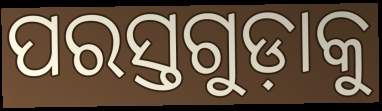
ପରସ୍ତଗୁଡ଼ାକୁ